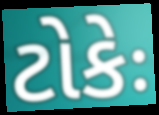
ટોકેઃ